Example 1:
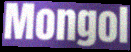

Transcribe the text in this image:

Mongol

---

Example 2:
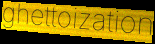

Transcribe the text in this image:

ghettoization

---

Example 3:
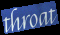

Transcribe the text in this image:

throat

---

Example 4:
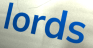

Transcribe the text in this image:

lords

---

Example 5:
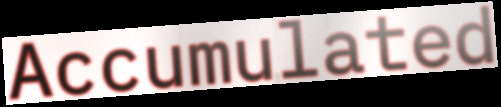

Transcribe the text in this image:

Accumulated